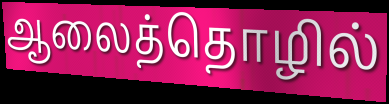
ஆலைத்தொழில்